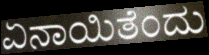
ಏನಾಯಿತೆಂದು